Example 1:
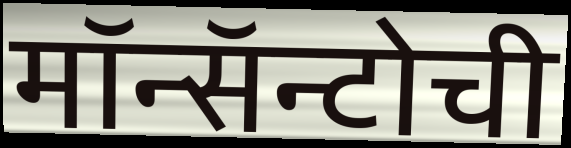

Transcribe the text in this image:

मॉन्सॅन्टोची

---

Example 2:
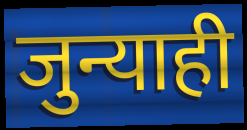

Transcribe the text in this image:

जुन्याही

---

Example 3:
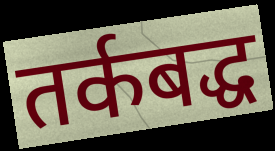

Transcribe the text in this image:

तर्कबद्ध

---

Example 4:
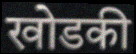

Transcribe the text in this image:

खोडकी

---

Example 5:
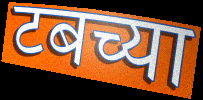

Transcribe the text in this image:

टबच्या